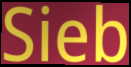
Sieb